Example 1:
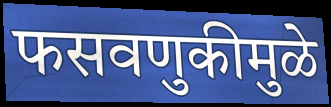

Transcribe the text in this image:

फसवणुकीमुळे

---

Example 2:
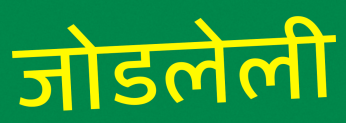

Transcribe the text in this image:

जोडलेली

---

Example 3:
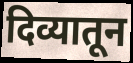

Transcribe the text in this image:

दिव्यातून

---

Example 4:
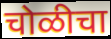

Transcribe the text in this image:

चोळीचा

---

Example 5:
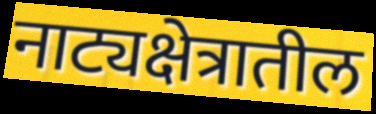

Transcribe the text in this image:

नाट्यक्षेत्रातील